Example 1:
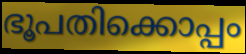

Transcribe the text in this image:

ഭൂപതിക്കൊപ്പം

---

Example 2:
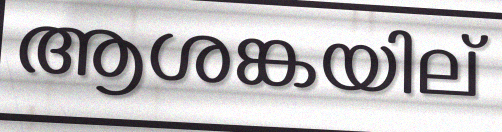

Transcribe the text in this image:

ആശങ്കയില്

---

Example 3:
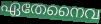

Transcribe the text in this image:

ഏതേനൈവ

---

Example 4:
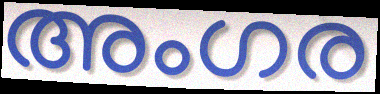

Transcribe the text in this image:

അംഗര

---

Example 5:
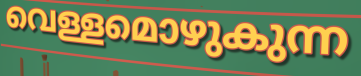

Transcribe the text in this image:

വെള്ളമൊഴുകുന്ന